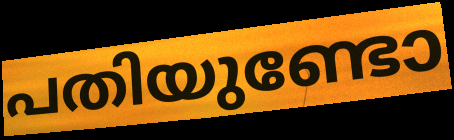
പതിയുണ്ടോ